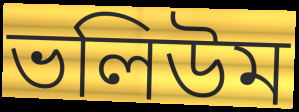
ভলিউম